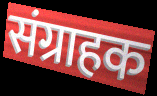
संग्राहक